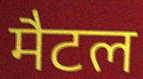
मैटल